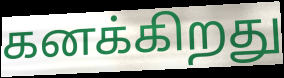
கனக்கிறது